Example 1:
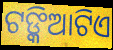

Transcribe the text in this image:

ଟଙ୍କିଆଟିଏ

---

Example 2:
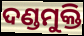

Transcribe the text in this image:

ଦଣ୍ଡମୁକ୍ତି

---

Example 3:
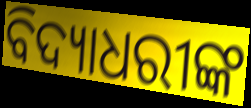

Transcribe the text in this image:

ବିଦ୍ୟାଧରୀଙ୍କ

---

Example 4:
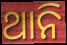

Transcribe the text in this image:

ଥାନି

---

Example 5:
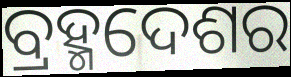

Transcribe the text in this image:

ବ୍ରହ୍ମଦେଶର